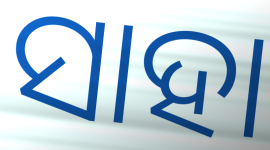
ସାହା